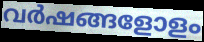
വർഷങ്ങളോളം